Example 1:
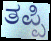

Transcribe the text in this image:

ತಪ್ಪಿ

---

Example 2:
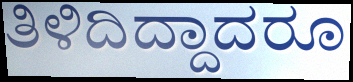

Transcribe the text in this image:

ತಿಳಿದಿದ್ದಾದರೂ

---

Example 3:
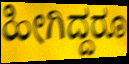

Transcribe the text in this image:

ಹೀಗಿದ್ದರೂ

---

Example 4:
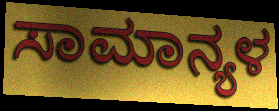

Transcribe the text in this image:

ಸಾಮಾನ್ಯಳ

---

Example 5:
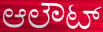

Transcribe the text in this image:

ಆಲೌಟ್